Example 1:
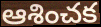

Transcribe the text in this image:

ఆశించక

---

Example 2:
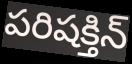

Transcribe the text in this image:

పరిషక్తిన్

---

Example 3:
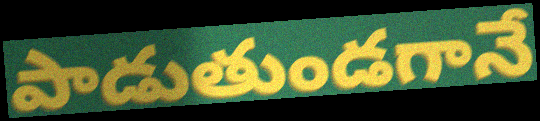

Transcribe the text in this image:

పాడుతుండగానే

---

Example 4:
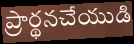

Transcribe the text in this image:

ప్రార్థనచేయుడి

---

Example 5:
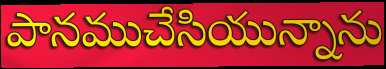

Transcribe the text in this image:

పానముచేసియున్నాను